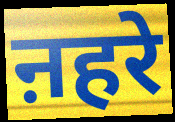
ऩहरे